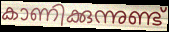
കാണിക്കുന്നുണ്ട്